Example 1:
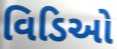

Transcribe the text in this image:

વિડિઓ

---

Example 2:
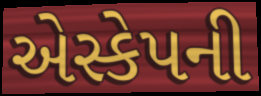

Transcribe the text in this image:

એસ્કેપની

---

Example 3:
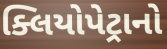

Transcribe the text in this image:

ક્લિયોપેટ્રાનો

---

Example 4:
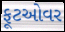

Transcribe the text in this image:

ફૂટઓવર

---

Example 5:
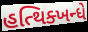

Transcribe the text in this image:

હત્થિક્ખન્ધે